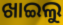
ଖାଇଲୁ